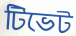
টিভেট